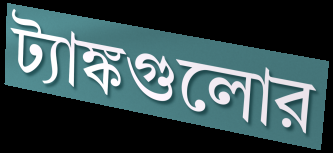
ট্যাঙ্কগুলোর